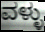
ವಳ್ಳು